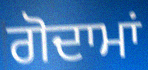
ਗੋਦਾਮਾਂ